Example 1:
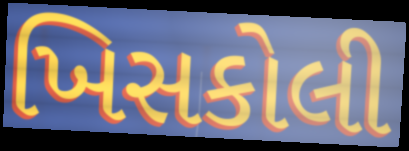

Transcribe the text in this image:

ખિસકોલી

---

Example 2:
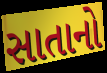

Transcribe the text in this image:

સાતાનો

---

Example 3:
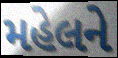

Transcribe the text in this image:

મહેલને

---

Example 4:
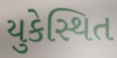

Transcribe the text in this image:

યુકેસ્થિત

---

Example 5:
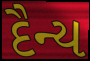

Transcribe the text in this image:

દૈન્ય